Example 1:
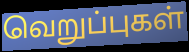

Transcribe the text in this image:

வெறுப்புகள்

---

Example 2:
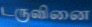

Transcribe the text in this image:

டருவினை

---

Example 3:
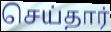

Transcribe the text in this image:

செய்தார்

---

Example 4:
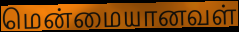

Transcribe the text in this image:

மென்மையானவள்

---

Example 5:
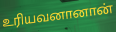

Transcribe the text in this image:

உரியவனானான்